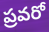
ప్రవరో